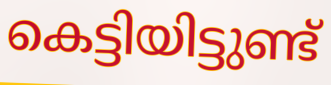
കെട്ടിയിട്ടുണ്ട്